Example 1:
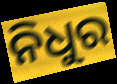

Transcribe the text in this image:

ନିଧୁର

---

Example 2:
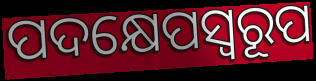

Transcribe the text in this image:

ପଦକ୍ଷେପସ୍ଵରୂପ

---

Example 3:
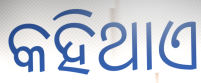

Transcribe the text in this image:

କହିଥାଏ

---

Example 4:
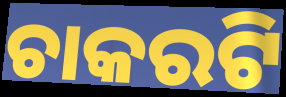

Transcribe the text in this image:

ଚାକରଟି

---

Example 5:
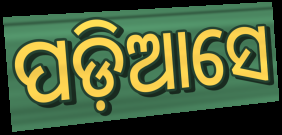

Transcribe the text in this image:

ପଡ଼ିଆସେ